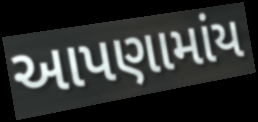
આપણામાંય